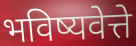
भविष्यवेत्ते